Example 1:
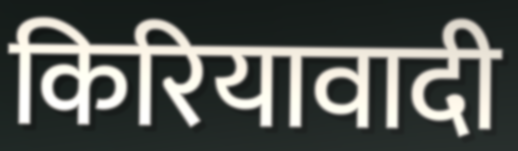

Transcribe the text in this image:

किरियावादी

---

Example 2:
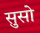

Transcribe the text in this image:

सुसो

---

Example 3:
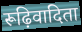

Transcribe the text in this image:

रूढ़िवादिता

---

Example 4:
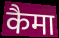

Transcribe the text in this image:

कैमा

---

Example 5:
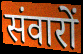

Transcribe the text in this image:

संवारों